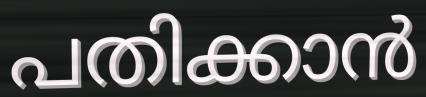
പതിക്കാൻ